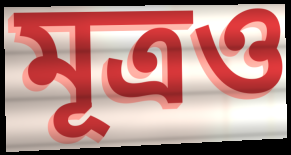
মূত্রও